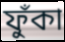
ফুঁকা